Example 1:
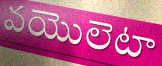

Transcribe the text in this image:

వయొలెటా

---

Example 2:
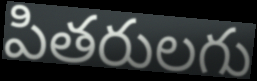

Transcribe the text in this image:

పితరులగు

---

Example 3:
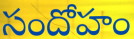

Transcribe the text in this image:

సందోహం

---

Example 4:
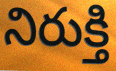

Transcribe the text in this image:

నిరుక్తి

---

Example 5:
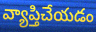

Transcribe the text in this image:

వ్యాప్తిచేయడం